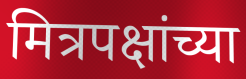
मित्रपक्षांच्या